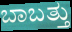
ಬಾಬತ್ತು